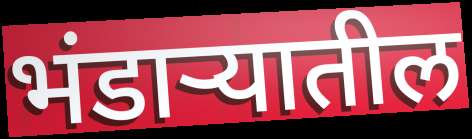
भंडाऱ्यातील